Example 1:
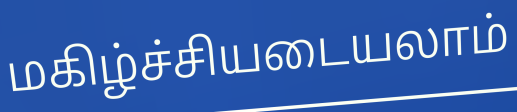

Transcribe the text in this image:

மகிழ்ச்சியடையலாம்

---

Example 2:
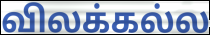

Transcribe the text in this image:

விலக்கல்ல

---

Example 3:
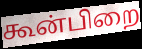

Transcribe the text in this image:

கூன்பிறை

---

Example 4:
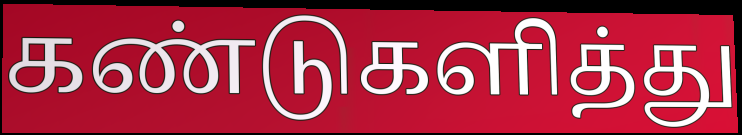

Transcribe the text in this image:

கண்டுகளித்து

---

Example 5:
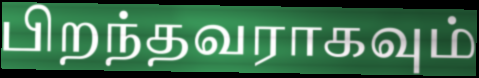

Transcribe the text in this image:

பிறந்தவராகவும்